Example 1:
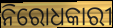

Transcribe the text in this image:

ନିରୋଧକାରୀ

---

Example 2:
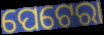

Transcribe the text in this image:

ପେଟେରା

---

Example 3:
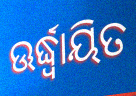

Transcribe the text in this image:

ଊର୍ଦ୍ଧ୍ୱାୟିତ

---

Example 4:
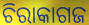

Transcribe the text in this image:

ଚିରାକାଗଜ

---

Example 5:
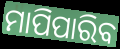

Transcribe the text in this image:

ମାପିପାରିବ